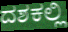
ದಶಕಲ್ಲಿ